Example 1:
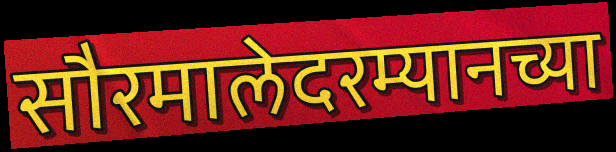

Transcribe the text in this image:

सौरमालेदरम्यानच्या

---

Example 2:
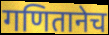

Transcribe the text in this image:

गणितानेच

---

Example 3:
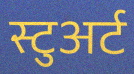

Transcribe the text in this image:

स्टुअर्ट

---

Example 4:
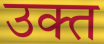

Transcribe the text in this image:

उक्त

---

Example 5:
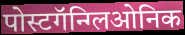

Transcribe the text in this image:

पोस्टगॅन्ग्लिओनिक